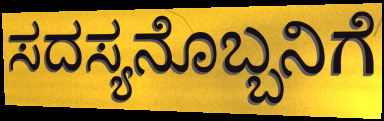
ಸದಸ್ಯನೊಬ್ಬನಿಗೆ